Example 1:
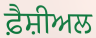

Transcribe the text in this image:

ਫ਼ੈਸ਼ੀਅਲ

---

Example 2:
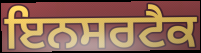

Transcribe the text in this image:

ਇਨਸਰਟੈਕ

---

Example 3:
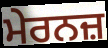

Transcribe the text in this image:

ਮੇਰਨਜ਼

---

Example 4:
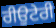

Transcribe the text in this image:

ਰੀਉਟੇਰੀ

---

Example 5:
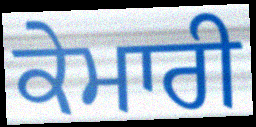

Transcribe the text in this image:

ਕੇਮਾਰੀ